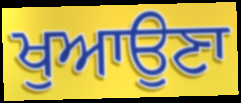
ਖੁਆਉਣਾ